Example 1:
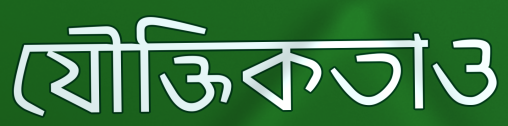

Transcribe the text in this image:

যৌক্তিকতাও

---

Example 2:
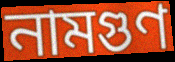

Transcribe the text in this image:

নামগুণ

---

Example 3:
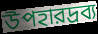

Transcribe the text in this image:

উপহারদ্রব্য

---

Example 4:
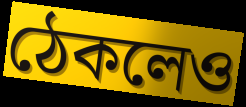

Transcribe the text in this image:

ঠেকলেও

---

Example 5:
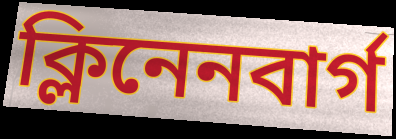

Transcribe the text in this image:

ক্লিনেনবার্গ